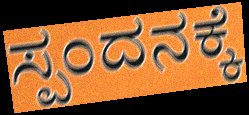
ಸ್ಪಂದನಕ್ಕೆ